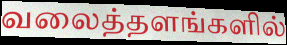
வலைத்தளங்களில்